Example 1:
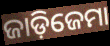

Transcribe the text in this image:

ଜାଡ଼ିଜେମା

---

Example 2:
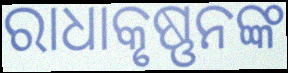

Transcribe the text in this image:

ରାଧାକୃଷ୍ଣନଙ୍କ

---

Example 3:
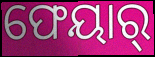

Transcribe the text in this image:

ଫେୟାର୍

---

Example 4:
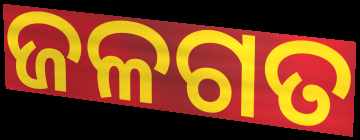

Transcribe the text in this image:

ଜଳଗତ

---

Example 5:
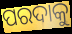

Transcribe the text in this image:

ପରଦାକୁ